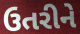
ઉતરીને